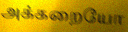
அக்கறையோ